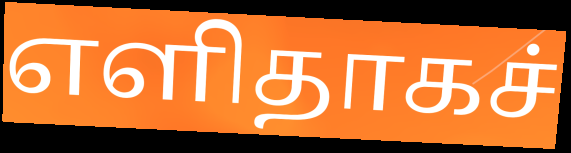
எளிதாகச்